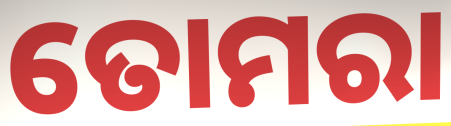
ତୋମରା